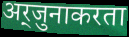
अर्जुनाकरता